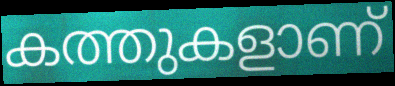
കത്തുകളാണ്